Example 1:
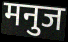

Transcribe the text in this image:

मनुज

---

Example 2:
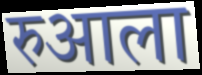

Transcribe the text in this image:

रुआला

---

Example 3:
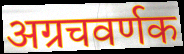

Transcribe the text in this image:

अग्रचवर्णक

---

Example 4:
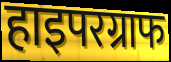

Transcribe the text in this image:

हाइपरग्राफ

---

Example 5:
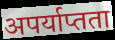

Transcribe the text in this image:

अपर्याप्‍तता